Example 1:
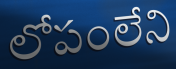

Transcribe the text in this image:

లోపంలేని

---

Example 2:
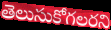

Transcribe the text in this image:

తెలుసుకోగలరని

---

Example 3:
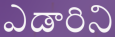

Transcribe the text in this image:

ఎడారిని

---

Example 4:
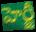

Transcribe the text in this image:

హెర్జీ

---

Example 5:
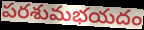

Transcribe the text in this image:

పరశుమభయదం